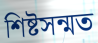
শিষ্টসন্মত